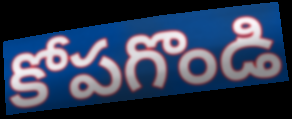
కోపగొండి